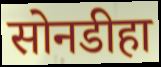
सोनडीहा